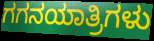
ಗಗನಯಾತ್ರಿಗಳು